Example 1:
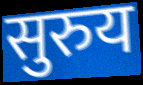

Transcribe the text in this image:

सुरुय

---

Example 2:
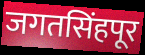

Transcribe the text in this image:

जगतसिंहपूर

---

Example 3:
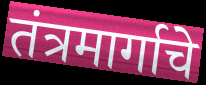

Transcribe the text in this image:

तंत्रमार्गाचे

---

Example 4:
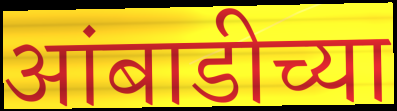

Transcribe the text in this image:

आंबाडीच्या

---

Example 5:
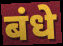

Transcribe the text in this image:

बंधे